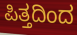
ಪಿತ್ತದಿಂದ